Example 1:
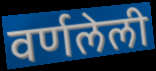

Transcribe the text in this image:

वर्णलेली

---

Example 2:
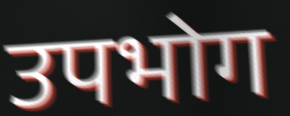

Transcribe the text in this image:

उपभोग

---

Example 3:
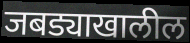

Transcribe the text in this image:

जबड्याखालील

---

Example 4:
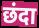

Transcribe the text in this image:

छंदा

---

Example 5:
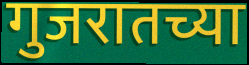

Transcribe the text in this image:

गुजरातच्या